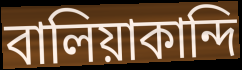
বালিয়াকান্দি